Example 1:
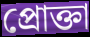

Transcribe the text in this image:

প্রোক্তা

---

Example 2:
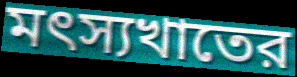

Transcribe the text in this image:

মৎস্যখাতের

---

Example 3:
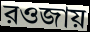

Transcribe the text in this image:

রওজায়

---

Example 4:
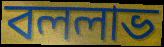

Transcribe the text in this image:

বললাভ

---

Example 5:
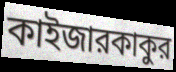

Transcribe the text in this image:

কাইজারকাকুর